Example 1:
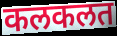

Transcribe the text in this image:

कलकलत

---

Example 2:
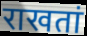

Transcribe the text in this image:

राखतां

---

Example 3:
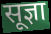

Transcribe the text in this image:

सूज्ञा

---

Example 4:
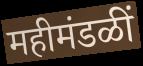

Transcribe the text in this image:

महीमंडळीं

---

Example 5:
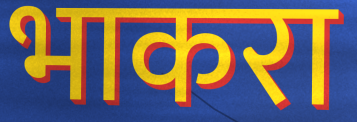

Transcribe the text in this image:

भाकरा